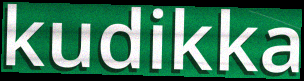
kudikka